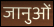
जानुओं